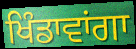
ਖਿੰਡਾਵਾਂਗਾ